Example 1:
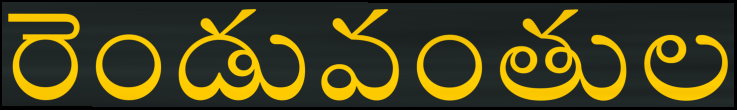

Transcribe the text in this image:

రెండువంతుల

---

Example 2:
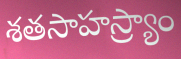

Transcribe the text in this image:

శతసాహస్ర్యాం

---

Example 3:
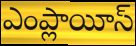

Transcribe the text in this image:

ఎంప్లాయీస్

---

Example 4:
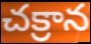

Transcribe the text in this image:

చక్రాన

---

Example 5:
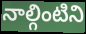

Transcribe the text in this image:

నాల్గింటిని